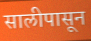
सालीपासून